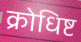
क्रोधिष्ट